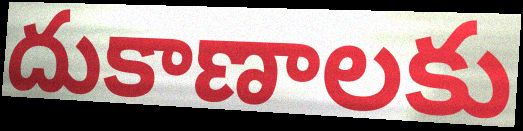
దుకాణాలకు